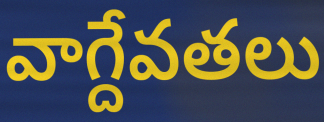
వాగ్దేవతలు